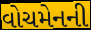
વોચમેનની